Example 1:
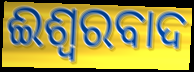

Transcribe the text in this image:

ଈଶ୍ୱରବାଦ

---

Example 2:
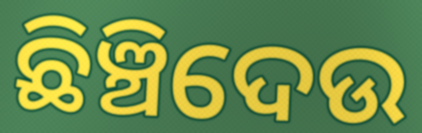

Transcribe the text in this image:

ଛିଞ୍ଚିଦେଉ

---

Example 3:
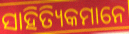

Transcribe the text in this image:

ସାହିତ୍ୟିକମାନେ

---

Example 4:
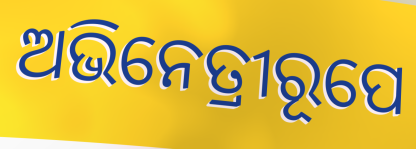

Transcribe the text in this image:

ଅଭିନେତ୍ରୀରୂପେ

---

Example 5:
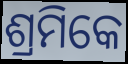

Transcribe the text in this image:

ଶ୍ରମିକେ